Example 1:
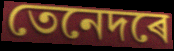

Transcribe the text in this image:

তেনেদৰে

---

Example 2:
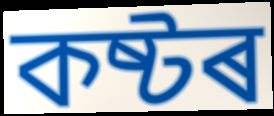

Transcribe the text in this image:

কষ্টৰ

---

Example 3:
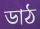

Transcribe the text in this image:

ডাঠ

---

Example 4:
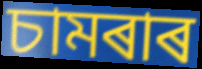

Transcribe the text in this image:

চামৰাৰ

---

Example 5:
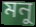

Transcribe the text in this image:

মনু